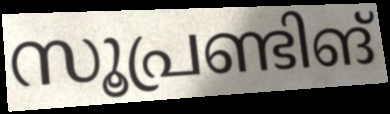
സൂപ്രണ്ടിങ്